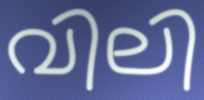
വിലി